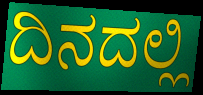
ದಿನದಲ್ಲಿ